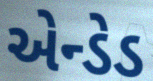
એન્ડેડ